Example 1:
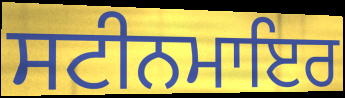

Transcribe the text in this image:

ਸਟੀਨਮਾਇਰ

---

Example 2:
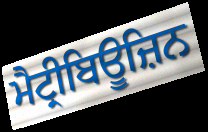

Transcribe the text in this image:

ਮੈਟ੍ਰੀਬਿਊਜ਼ਿਨ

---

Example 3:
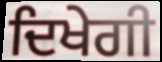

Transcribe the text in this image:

ਦਿਖੇਗੀ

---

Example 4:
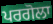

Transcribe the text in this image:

ਪਰਗੋਲਾ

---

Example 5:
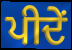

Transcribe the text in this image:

ਪੀਦੇਂ